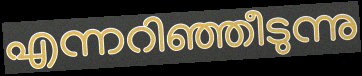
എന്നറിഞ്ഞീടുന്നു